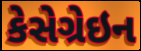
કેસેગ્રેઇન